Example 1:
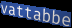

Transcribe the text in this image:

vattabbe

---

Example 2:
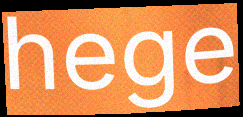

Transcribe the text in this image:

hege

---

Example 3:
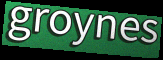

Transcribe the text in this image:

groynes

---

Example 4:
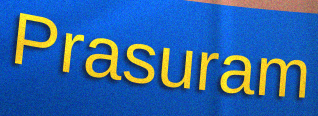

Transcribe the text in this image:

Prasuram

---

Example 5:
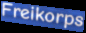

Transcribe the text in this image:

Freikorps